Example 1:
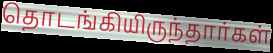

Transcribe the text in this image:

தொடங்கியிருந்தார்கள்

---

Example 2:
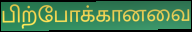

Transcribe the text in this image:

பிற்போக்கானவை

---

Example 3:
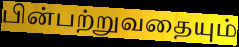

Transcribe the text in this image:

பின்பற்றுவதையும்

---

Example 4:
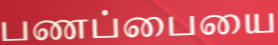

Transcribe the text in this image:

பணப்பையை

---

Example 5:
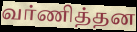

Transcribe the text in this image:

வர்ணித்தன